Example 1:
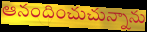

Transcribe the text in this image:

ఆనందించుచున్నాను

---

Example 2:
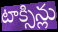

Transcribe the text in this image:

టాక్సిన్లు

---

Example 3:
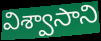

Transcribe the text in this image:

విశ్వాసాని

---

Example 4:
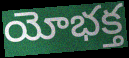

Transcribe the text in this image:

యోభక్త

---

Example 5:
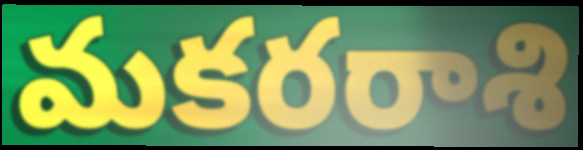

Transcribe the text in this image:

మకరరాశి